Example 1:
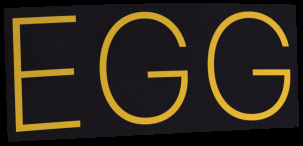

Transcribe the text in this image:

EGG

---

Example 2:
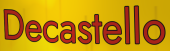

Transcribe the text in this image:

Decastello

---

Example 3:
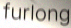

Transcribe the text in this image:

furlong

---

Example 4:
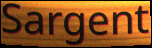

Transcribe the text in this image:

Sargent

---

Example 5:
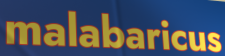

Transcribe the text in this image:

malabaricus